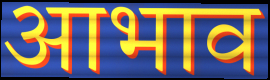
आभाव